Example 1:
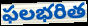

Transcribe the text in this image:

ఫలభరిత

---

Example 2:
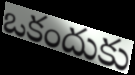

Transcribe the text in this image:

ఒకందుకు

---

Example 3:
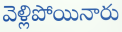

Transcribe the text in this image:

వెళ్లిపోయినారు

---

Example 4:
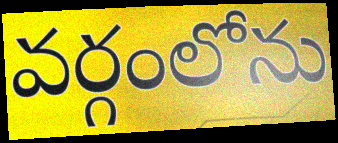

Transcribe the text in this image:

వర్గంలోను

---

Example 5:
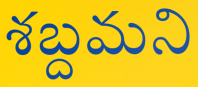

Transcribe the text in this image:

శబ్దమని